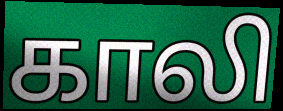
காலி